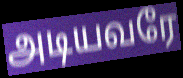
அடியவரே